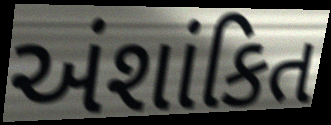
અંશાંકિત